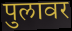
पुलावर